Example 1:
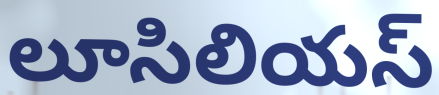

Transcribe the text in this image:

లూసిలియస్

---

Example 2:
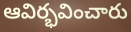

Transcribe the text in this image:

ఆవిర్భవించారు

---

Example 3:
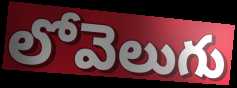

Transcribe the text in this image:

లోవెలుగు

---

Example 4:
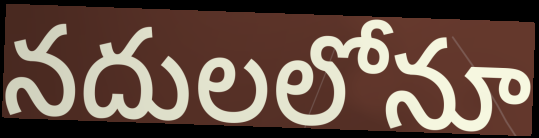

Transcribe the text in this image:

నదులలోనూ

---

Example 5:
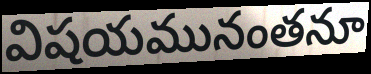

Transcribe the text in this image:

విషయమునంతనూ